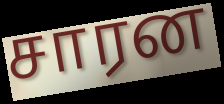
சாரன